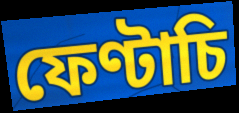
ফেণ্টাচি